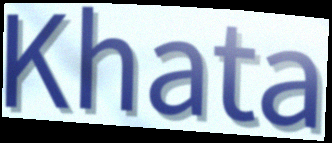
Khata